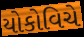
યોકોવિચે